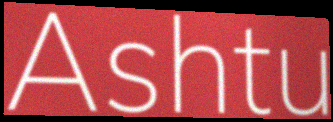
Ashtu